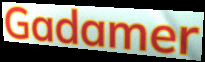
Gadamer